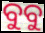
ବୁବୁ